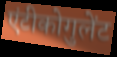
एंटीकोगुलेंट